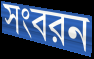
সংবরন